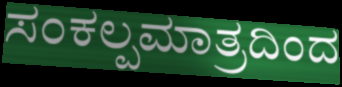
ಸಂಕಲ್ಪಮಾತ್ರದಿಂದ